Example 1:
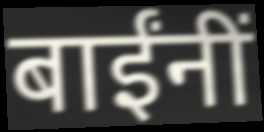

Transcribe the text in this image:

बाईंनीं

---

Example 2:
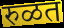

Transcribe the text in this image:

रुळत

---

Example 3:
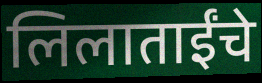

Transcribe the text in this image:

लिलाताईंचे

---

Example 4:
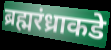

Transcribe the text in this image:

ब्रह्मरंध्राकडे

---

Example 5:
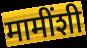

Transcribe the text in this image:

मामींशी